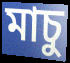
মাচু